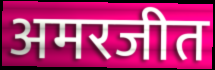
अमरजीत